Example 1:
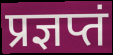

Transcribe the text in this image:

प्रज्ञप्तं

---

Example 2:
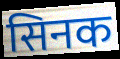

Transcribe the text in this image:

सिनक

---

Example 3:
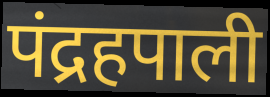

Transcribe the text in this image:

पंद्रहपाली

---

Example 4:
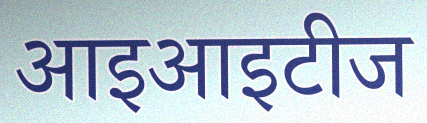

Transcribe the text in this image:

आइआइटीज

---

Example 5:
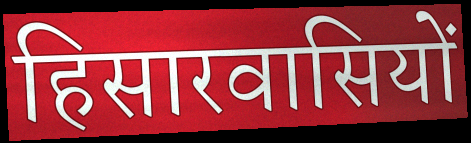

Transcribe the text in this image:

हिसारवासियों